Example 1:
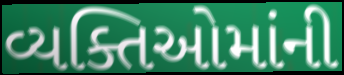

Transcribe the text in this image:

વ્યક્તિઓમાંની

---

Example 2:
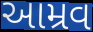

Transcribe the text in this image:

આમ્રવ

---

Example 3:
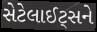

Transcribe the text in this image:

સેટેલાઈટ્સને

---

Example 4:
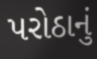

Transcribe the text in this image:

પરોઠાનું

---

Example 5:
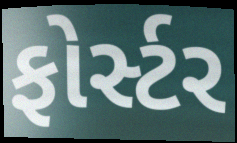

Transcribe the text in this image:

ફોર્સ્ટર